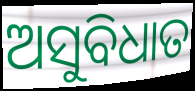
ଅସୁବିଧାତ